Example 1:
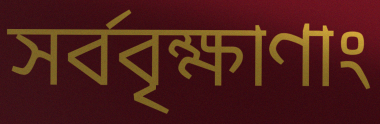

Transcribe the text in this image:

সর্ববৃক্ষাণাং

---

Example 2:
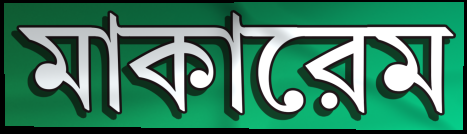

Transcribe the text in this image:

মাকারেম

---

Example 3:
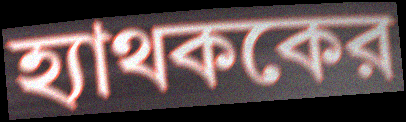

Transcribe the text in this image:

হ্যাথককের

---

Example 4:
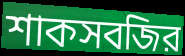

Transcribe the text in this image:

শাকসবজির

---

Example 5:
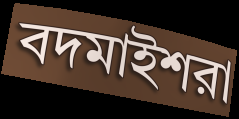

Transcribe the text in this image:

বদমাইশরা